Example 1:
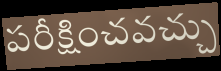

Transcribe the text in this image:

పరీక్షించవచ్చు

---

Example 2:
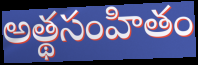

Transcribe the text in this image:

అత్థసంహితం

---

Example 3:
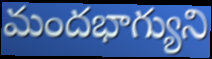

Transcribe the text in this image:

మందభాగ్యుని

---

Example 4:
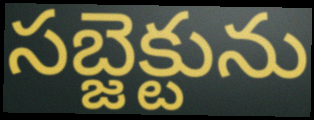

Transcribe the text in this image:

సబ్జెక్టును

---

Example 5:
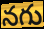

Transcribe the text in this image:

నగు